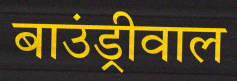
बाउंड्रीवाल